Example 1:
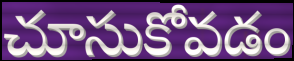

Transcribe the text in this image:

చూసుకోవడం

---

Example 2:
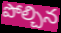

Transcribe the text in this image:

పోల్చిన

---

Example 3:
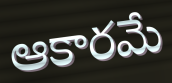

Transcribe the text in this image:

ఆకారమే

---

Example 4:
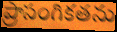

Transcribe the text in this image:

ప్రాసంగికతను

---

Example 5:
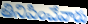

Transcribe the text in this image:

తినిపించేవారు